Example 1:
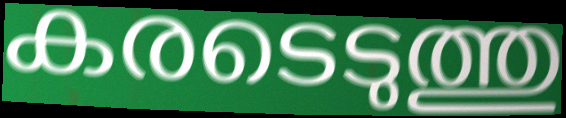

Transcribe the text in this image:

കരടെടുത്തു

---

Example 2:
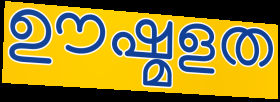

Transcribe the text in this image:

ഊഷ്മളത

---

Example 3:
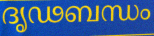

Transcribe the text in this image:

ദൃഢബന്ധം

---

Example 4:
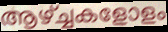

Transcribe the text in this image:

ആഴ്ച്ചകളോളം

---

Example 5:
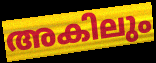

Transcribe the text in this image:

അകിലും